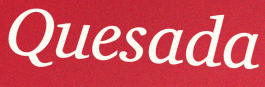
Quesada